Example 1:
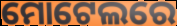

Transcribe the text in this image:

ମୋଟେଲରେ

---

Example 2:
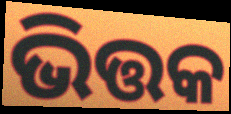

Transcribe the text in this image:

ଭିତ୍ତକ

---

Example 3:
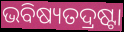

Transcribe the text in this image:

ଭବିଷ୍ୟତଦ୍ରଷ୍ଟା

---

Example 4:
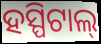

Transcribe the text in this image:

ହସ୍ପିଟାଲ୍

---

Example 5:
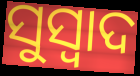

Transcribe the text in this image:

ସୁସ୍ୱାଦ